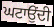
ਘਟਾਉਂਦੀ